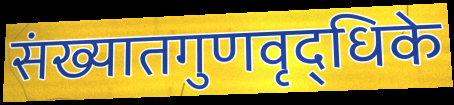
संख्यातगुणवृद्धिके